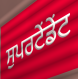
ਸੁਪਰਟੇਂਡੇਂਟ